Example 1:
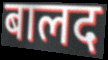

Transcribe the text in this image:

बालद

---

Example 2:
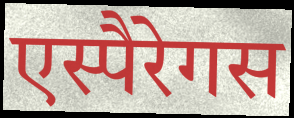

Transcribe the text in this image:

एस्पैरेगस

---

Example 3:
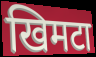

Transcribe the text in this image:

खिमटा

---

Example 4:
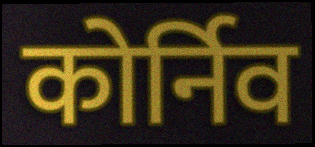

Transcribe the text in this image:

कोर्निव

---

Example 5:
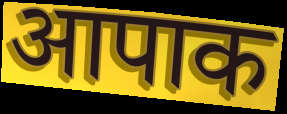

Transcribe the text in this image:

आपाक